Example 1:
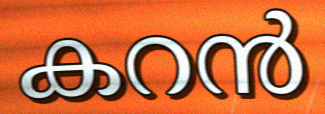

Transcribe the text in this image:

കറൻ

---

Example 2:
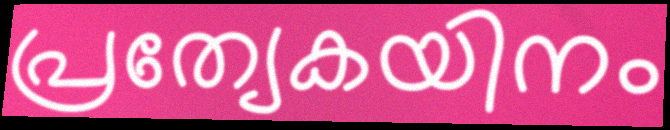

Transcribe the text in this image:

പ്രത്യേകയിനം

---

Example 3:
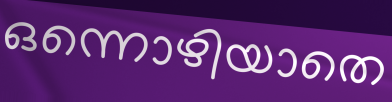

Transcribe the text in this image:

ഒന്നൊഴിയാതെ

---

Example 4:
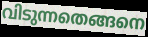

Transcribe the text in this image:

വിടുന്നതെങ്ങനെ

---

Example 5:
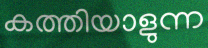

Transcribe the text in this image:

കത്തിയാളുന്ന